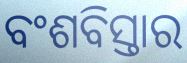
ବଂଶବିସ୍ତାର